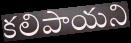
కలిపాయని